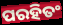
ପରହିତଂ